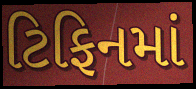
ટિફિનમાં